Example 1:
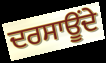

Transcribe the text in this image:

ਦਰਸਾਊਂਦੇ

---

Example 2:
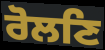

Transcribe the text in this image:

ਰੋਲਣਿ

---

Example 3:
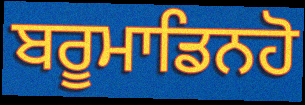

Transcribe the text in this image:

ਬਰੂਮਾਡਿਨਹੋ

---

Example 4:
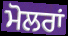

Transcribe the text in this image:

ਮੋਲਰਾਂ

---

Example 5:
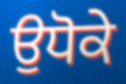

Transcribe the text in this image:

ਉਧੋਕੇ